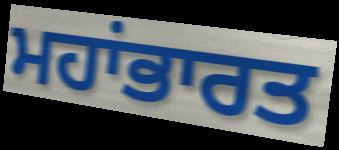
ਮਹਾਂਭਾਰਤ